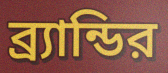
ব্র্যান্ডির